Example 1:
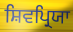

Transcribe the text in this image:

ਸ਼ਿਵਪ੍ਰਿਯਾ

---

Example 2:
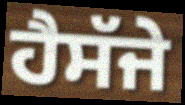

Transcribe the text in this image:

ਹੈਸੱਜੇ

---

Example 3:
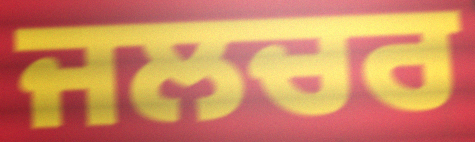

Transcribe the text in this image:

ਜਲਚਰ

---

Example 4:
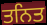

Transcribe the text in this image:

ਤਨਿਤ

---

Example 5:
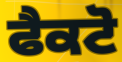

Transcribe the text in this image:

ਫੈਕਟੋ